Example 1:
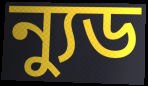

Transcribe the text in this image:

ন্যুড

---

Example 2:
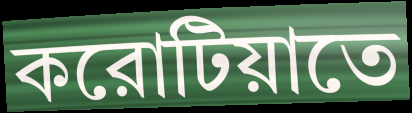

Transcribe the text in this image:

করোটিয়াতে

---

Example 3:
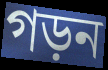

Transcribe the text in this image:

গড়ন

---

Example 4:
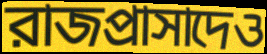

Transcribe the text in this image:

রাজপ্রাসাদেও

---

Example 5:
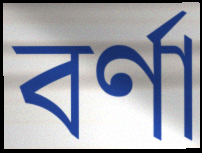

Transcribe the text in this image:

বর্ণা